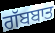
ਗੱਬਬਾਤ